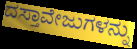
ದಸ್ತಾವೇಜುಗಳನ್ನು